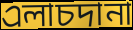
এলাচদানা